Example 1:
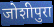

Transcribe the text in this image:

जोशीपुरा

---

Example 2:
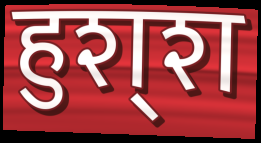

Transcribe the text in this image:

हुश्श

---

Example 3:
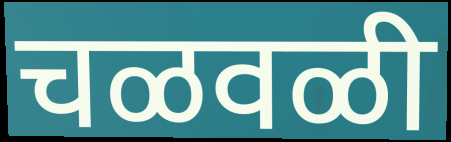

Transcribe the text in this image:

चळवळी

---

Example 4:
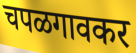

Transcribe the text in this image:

चपळगावकर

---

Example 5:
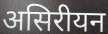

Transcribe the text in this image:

असिरीयन